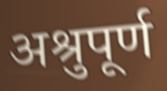
अश्रुपूर्ण